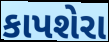
કાપશેરા